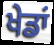
ਖੇਡਾਂ